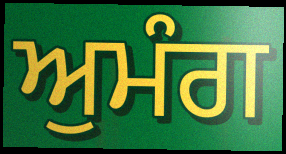
ਅੁਮੰਗ